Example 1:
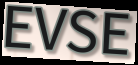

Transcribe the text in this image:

EVSE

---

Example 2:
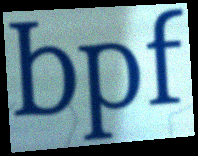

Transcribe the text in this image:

bpf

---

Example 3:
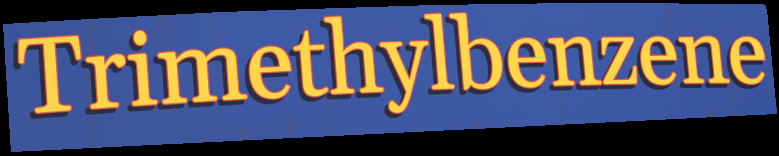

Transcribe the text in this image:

Trimethylbenzene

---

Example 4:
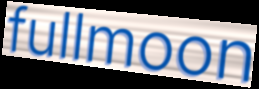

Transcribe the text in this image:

fullmoon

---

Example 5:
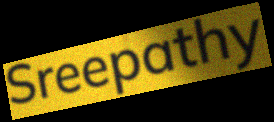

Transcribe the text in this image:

Sreepathy